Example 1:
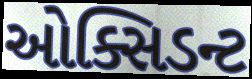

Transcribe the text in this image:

ઓક્સિડન્ટ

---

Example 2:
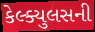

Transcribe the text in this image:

કેલ્ક્યુલસની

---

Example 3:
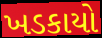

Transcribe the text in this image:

ખડકાયો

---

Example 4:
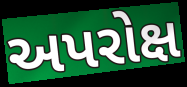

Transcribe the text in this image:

અપરોક્ષ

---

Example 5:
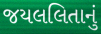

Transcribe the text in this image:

જયલલિતાનું